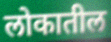
लोकातील